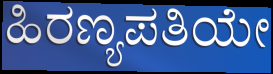
ಹಿರಣ್ಯಪತಿಯೇ